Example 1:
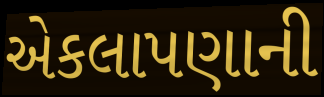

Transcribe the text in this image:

એકલાપણાની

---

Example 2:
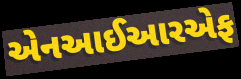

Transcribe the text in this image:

એનઆઈઆરએફ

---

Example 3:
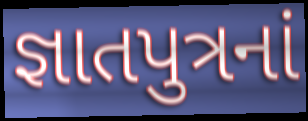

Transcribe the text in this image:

જ્ઞાતપુત્રનાં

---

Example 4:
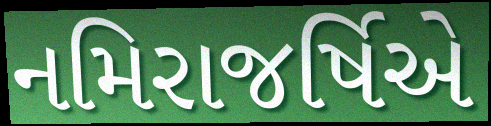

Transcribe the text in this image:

નમિરાજર્ષિએ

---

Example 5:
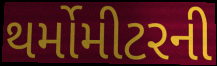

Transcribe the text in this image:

થર્મોમીટરની